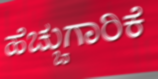
ಹೆಚ್ಚುಗಾರಿಕೆ